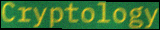
Cryptology